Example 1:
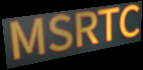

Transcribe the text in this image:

MSRTC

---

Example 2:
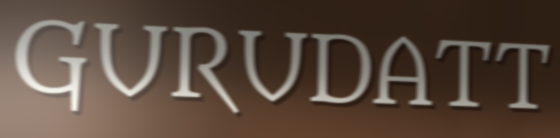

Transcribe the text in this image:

GURUDATT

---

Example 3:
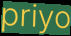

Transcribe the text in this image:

priyo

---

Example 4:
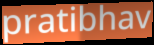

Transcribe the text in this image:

pratibhav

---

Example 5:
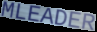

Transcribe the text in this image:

MLEADER